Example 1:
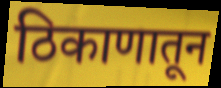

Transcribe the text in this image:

ठिकाणातून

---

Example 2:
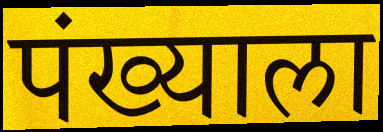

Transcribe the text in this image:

पंख्याला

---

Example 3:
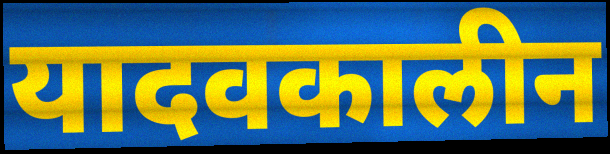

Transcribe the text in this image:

यादवकालीन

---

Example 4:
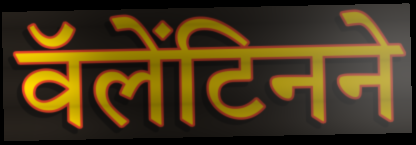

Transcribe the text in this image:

वॅलेंटिनने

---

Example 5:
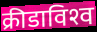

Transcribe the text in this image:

क्रीडाविश्व